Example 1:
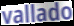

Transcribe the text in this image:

vallado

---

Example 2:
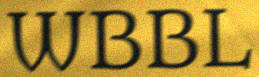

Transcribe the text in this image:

WBBL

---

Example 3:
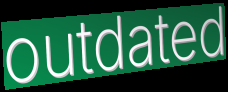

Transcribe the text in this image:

outdated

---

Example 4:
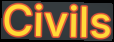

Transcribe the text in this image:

Civils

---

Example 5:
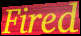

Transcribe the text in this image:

Fired